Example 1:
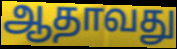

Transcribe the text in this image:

ஆதாவது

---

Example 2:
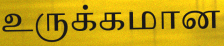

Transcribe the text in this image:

உருக்கமான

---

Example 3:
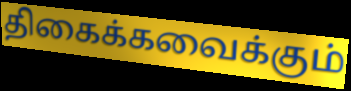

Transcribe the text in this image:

திகைக்கவைக்கும்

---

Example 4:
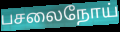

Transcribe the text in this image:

பசலைநோய்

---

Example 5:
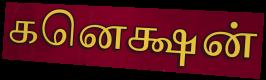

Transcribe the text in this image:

கனெக்ஷன்